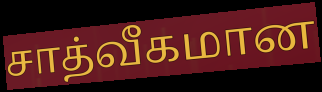
சாத்வீகமான